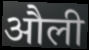
औली